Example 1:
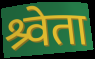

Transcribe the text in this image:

श्र्वेता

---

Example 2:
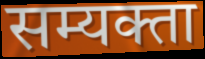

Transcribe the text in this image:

सम्यक्ता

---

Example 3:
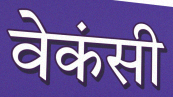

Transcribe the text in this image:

वेकंसी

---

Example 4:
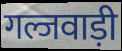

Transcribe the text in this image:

गल्जवाड़ी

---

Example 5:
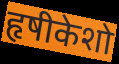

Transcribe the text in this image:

हृषीकेशो